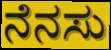
ನೆನಸು